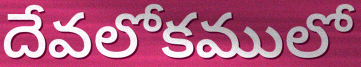
దేవలోకములో